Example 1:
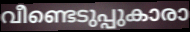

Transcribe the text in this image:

വീണ്ടെടുപ്പുകാരാ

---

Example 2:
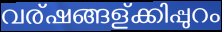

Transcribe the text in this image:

വര്ഷങ്ങള്ക്കിപ്പുറം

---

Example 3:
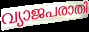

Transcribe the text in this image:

വ്യാജപരാതി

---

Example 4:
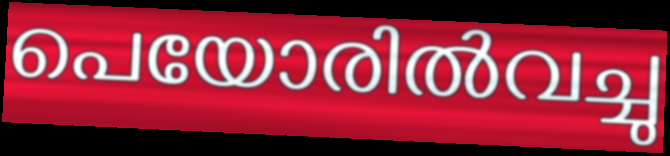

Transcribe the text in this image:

പെയോരിൽവച്ചു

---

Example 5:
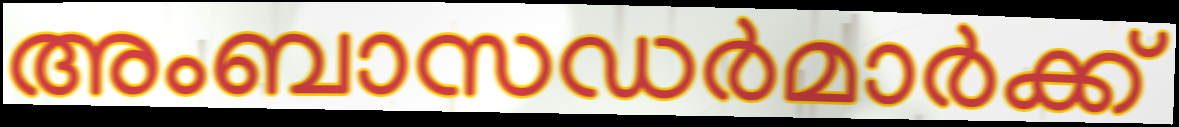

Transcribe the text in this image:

അംബാസഡർമാർക്ക്